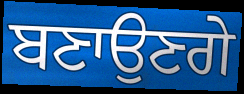
ਬਣਾਉਣਗੇ